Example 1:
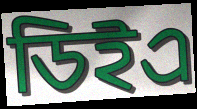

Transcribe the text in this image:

ডিইএ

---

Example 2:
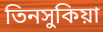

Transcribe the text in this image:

তিনসুকিয়া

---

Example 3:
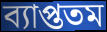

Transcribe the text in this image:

ব্যাপ্ততম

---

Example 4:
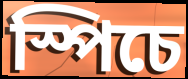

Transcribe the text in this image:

স্পিচে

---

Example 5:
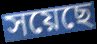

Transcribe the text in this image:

সয়েছে